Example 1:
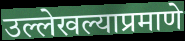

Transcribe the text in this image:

उल्लेखल्याप्रमाणे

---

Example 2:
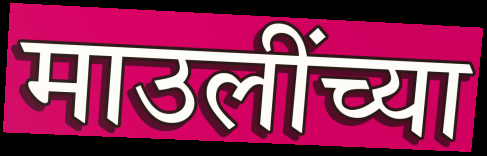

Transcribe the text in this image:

माउलींच्या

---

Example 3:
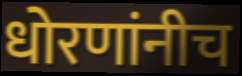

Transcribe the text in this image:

धोरणांनीच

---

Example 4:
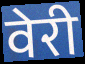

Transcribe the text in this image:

वेरी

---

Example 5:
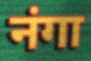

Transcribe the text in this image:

नंगा